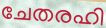
ചേതരഹി